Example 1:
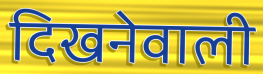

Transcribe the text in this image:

दिखनेवाली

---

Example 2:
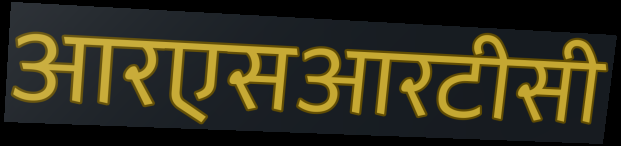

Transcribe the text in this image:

आरएसआरटीसी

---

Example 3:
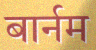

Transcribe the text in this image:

बार्नम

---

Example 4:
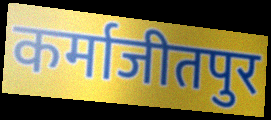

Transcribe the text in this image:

कर्माजीतपुर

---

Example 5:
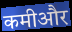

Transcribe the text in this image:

कमीऔर